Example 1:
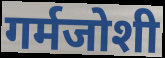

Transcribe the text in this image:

गर्मजोशी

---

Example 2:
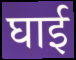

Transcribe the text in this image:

घाई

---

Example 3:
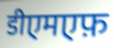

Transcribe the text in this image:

डीएमएफ़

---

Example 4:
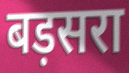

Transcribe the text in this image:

बड़सरा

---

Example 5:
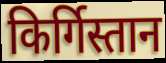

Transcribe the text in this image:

किर्गिस्तान